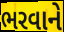
ભરવાને